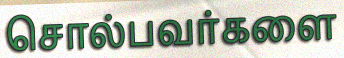
சொல்பவர்களை